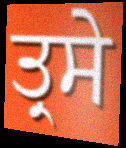
ਤ੍ਰਸੇ